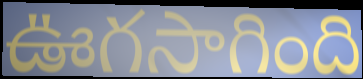
ఊగసాగింది